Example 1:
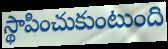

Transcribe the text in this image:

స్థాపించుకుంటుంది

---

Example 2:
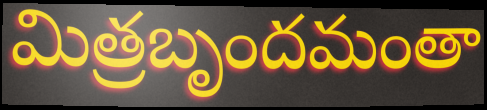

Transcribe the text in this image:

మిత్రబృందమంతా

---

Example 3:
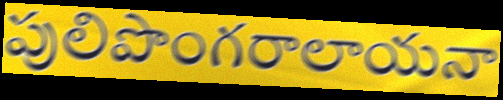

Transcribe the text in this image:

పులిపొంగరాలాయనా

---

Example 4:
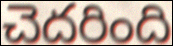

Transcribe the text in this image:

చెదరింది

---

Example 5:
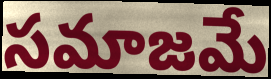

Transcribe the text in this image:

సమాజమే